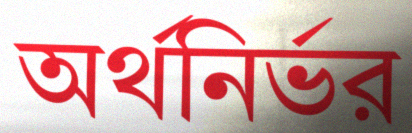
অর্থনির্ভর